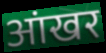
आंखर